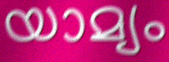
യാമ്യം